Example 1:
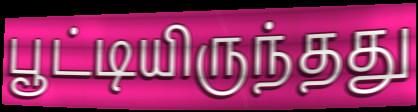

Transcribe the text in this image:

பூட்டியிருந்தது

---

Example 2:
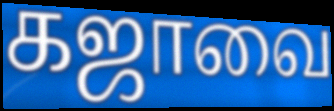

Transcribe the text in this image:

கஜாவை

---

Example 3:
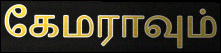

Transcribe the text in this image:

கேமராவும்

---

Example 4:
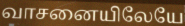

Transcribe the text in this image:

வாசனையிலேயே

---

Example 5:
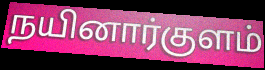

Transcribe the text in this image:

நயினார்குளம்